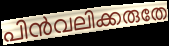
പിൻവലിക്കരുതേ